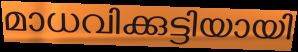
മാധവിക്കുട്ടിയായി